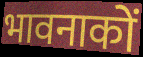
भावनाकों